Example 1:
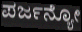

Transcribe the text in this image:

ಪರ್ಜನ್ಯೋ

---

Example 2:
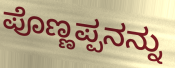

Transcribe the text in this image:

ಪೊಣ್ಣಪ್ಪನನ್ನು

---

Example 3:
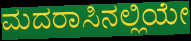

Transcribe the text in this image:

ಮದರಾಸಿನಲ್ಲಿಯೇ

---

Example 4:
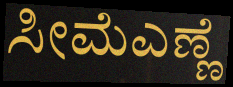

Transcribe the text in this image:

ಸೀಮೆಎಣ್ಣೆ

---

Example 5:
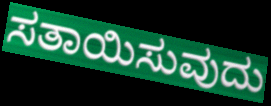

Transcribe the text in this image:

ಸತಾಯಿಸುವುದು